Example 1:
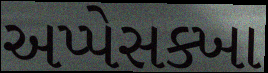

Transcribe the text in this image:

અપ્પેસક્ખા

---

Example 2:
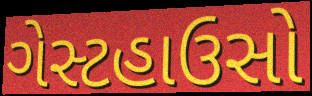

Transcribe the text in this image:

ગેસ્ટહાઉસો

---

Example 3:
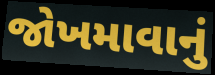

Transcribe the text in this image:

જોખમાવાનું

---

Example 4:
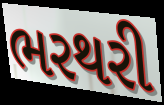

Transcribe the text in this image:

ભરથરી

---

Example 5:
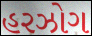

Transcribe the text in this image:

હરઝોગ